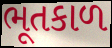
ભૂતકાળ